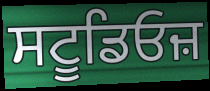
ਸਟੂਡਿਓਜ਼